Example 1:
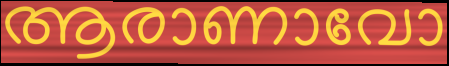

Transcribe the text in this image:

ആരാണാവോ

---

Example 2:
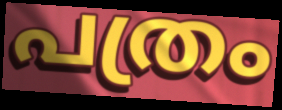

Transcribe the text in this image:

പത്രം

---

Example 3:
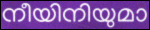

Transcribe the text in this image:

നീയിനിയുമാ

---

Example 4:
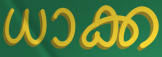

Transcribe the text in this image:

ധാക്ക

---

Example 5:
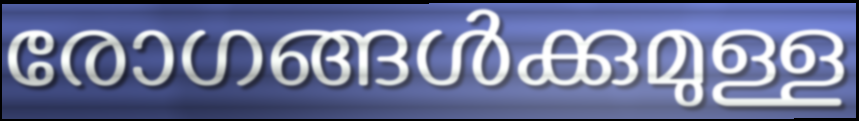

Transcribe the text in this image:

രോഗങ്ങൾക്കുമുള്ള